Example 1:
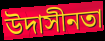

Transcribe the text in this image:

উদাসীনতা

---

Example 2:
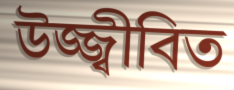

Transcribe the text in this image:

উজ্জ্বীবিত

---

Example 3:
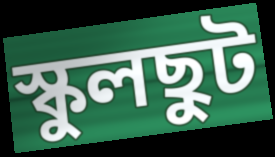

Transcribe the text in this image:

স্কুলছুট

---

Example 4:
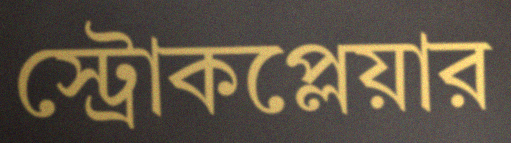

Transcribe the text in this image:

স্ট্রোকপ্লেয়ার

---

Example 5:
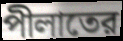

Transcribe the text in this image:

পীলাতের